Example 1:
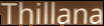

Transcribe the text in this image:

Thillana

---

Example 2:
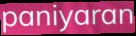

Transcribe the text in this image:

paniyaran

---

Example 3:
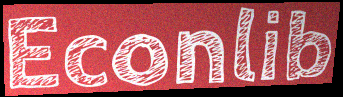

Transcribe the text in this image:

Econlib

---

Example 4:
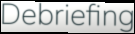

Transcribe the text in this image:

Debriefing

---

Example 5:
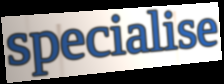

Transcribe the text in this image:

specialise